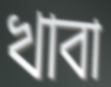
খাবা